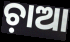
ଚ଼ାଆ